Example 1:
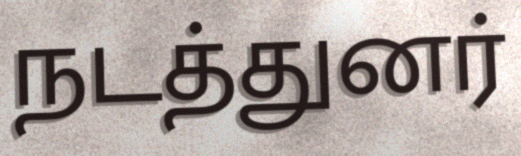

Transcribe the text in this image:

நடத்துனர்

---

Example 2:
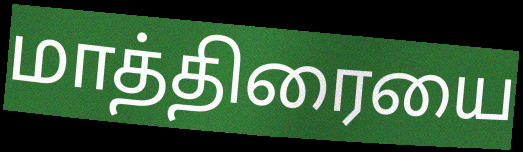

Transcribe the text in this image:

மாத்திரையை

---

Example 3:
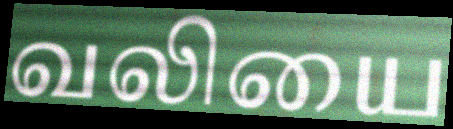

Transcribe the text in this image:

வலியை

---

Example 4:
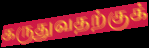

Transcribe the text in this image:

கருதுவதற்குக்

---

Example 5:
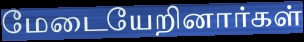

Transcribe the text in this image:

மேடையேறினார்கள்